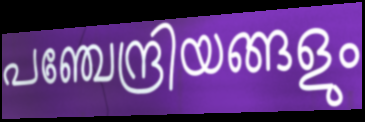
പഞ്ചേന്ദ്രിയങ്ങളും